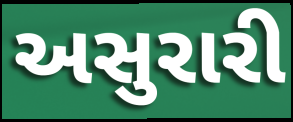
અસુરારી